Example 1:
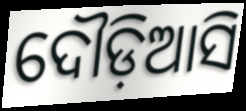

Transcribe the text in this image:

ଦୌଡ଼ିଆସି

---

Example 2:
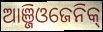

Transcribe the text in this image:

ଆଞ୍ଜିଓଜେନିକ୍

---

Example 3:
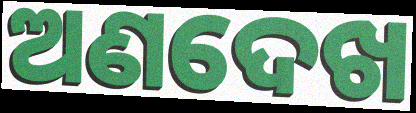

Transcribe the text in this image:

ଅଣଦେଖ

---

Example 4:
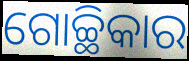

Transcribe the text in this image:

ଗୋଚ୍ଛିକାର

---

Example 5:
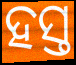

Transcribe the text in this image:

ହସ୍ତ